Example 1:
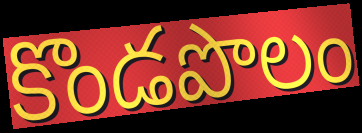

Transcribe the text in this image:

కొండపొలం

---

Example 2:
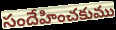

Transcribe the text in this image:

సందేహించకుము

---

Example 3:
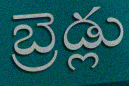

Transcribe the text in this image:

బ్రెడ్లు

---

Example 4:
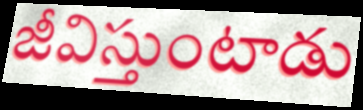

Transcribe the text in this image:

జీవిస్తుంటాడు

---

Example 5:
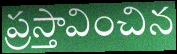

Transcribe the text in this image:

ప్రస్తావించిన